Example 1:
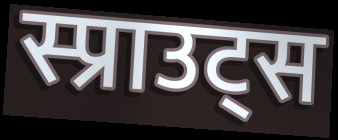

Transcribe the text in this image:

स्प्राउट्स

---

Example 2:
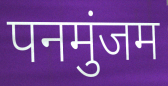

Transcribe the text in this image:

पनमुंजम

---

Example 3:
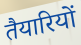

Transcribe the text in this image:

तैयारियों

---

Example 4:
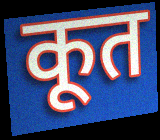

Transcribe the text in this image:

कूत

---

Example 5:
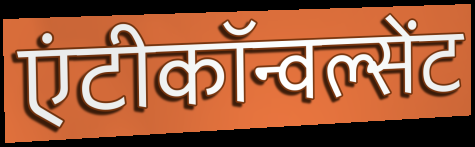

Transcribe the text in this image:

एंटीकॉन्वल्सेंट